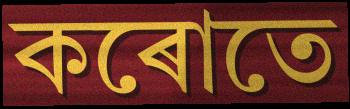
কৰোতে